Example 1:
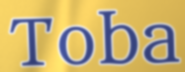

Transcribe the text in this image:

Toba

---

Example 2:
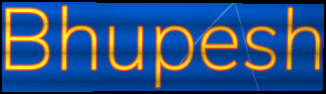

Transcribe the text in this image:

Bhupesh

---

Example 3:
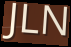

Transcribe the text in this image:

JLN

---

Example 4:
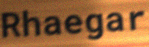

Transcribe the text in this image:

Rhaegar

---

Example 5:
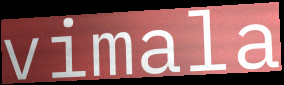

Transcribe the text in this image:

vimala